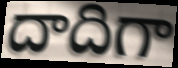
దాదిగా